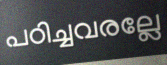
പഠിച്ചവരല്ലേ